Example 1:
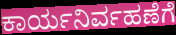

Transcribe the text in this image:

ಕಾರ್ಯನಿರ್ವಹಣೆಗೆ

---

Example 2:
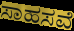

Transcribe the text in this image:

ಸಾಹಸವೆ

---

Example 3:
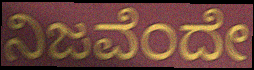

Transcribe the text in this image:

ನಿಜವೆಂದೇ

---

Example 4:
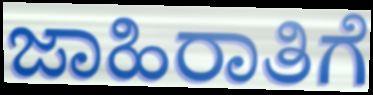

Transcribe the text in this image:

ಜಾಹಿರಾತಿಗೆ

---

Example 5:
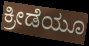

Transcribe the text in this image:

ಕ್ರೀಡೆಯೂ